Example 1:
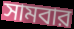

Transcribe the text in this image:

সামবার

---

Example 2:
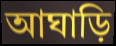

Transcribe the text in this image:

আঘাড়ি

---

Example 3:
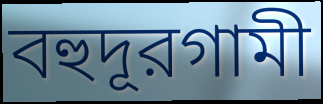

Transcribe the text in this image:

বহুদূরগামী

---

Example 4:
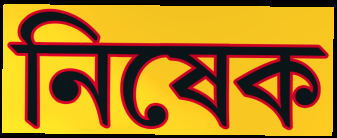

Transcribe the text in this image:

নিষেক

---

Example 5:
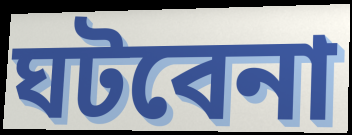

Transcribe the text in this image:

ঘটবেনা